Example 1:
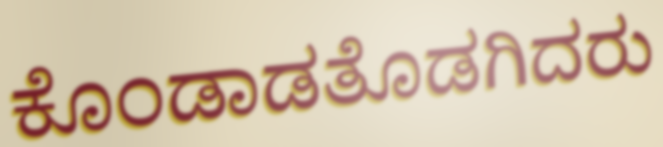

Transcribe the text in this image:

ಕೊಂಡಾಡತೊಡಗಿದರು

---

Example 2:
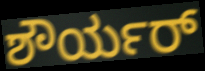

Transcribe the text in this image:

ಶೌರ್ಯರ್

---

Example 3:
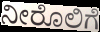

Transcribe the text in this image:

ನೀರೊಲಿಗೆ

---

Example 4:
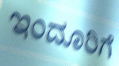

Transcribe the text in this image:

ಇಂದೂರಿಗೆ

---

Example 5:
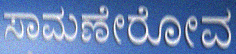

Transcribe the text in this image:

ಸಾಮಣೇರೋವ